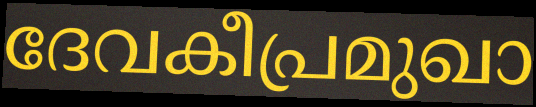
ദേവകീപ്രമുഖാ